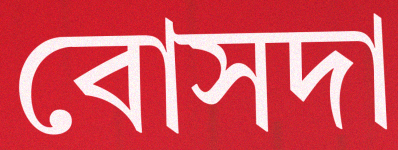
বোসদা